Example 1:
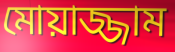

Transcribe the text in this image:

মোয়াজ্জাম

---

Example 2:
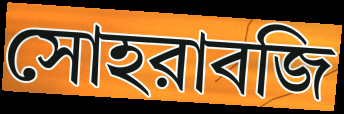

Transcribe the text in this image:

সোহরাবজি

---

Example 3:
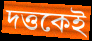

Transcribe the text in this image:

দত্তকেই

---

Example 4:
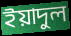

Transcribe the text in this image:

ইয়াদুল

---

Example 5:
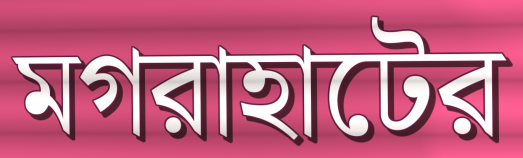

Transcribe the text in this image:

মগরাহাটের